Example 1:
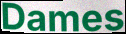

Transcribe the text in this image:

Dames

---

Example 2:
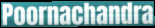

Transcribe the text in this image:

Poornachandra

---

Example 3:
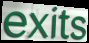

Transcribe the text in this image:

exits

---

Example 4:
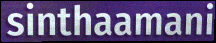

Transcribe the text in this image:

sinthaamani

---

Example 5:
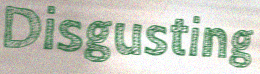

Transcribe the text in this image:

Disgusting